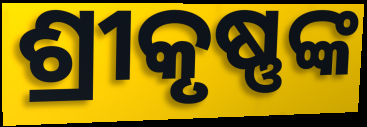
ଶ୍ରୀକୃଷ୍ଣଙ୍କ